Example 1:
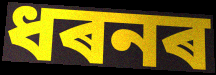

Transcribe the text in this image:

ধৰনৰ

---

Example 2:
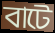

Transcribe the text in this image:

বাটে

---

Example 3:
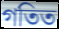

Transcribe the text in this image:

গতিত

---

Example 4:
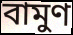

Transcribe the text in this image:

বামুণ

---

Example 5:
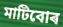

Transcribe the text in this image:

মাটিবোৰ